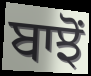
ਬਾਝੋਂ